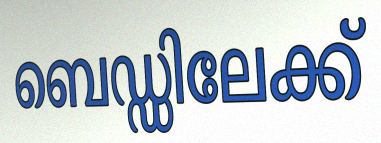
ബെഡ്ഡിലേക്ക്